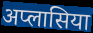
अप्लासिया